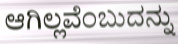
ಆಗಿಲ್ಲವೆಂಬುದನ್ನು